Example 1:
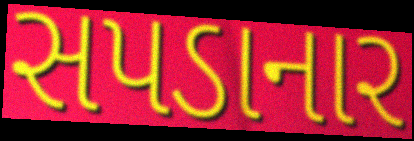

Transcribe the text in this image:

સપડાનાર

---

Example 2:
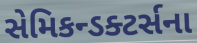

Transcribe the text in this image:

સેમિકન્ડક્ટર્સના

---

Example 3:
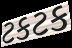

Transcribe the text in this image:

ટકટક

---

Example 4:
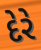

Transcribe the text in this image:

દેરે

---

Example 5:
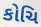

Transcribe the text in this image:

કોચિ